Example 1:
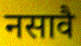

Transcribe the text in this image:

नसावै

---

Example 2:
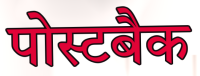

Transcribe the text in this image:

पोस्टबैक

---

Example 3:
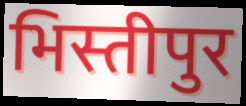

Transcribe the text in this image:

भिस्तीपुर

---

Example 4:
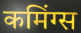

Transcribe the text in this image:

कमिंग्स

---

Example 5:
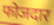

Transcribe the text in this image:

फोजदार